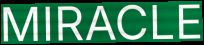
MIRACLE